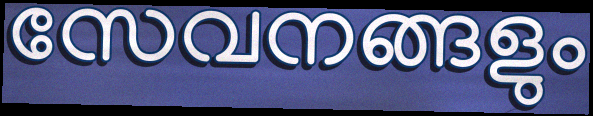
സേവനങ്ങളും